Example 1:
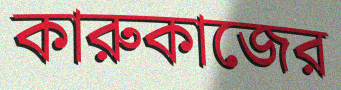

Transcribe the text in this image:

কারুকাজের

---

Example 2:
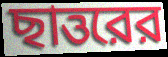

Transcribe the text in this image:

ছাত্তরের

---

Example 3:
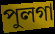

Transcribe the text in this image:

পুলগা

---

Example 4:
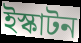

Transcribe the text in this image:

ইস্কাটন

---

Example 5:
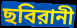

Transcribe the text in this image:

ছবিরানী